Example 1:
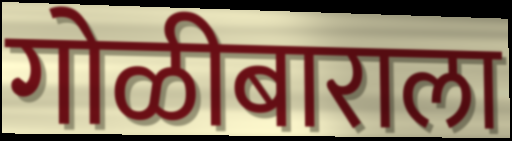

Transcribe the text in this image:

गोळीबाराला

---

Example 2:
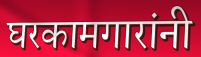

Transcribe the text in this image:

घरकामगारांनी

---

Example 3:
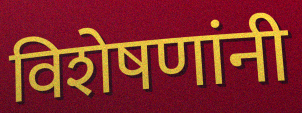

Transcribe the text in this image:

विशेषणांनी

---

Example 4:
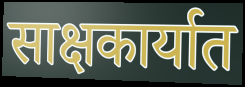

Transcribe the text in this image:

साक्षकार्यात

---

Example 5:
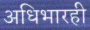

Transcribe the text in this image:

अधिभारही